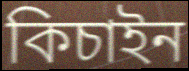
কিচাইন